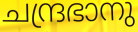
ചന്ദ്രഭാനു